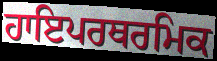
ਹਾਇਪਰਥਰਮਿਕ